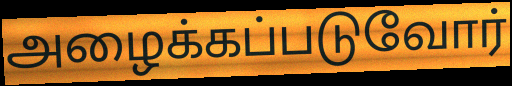
அழைக்கப்படுவோர்